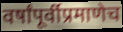
वर्षांपूर्वीप्रमाणेच